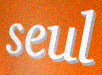
seul